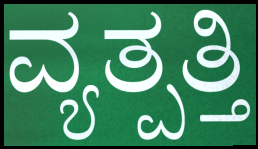
ವ್ಯತ್ಪತ್ತಿ